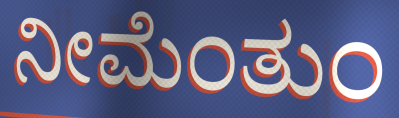
ನೀಮೆಂತುಂ